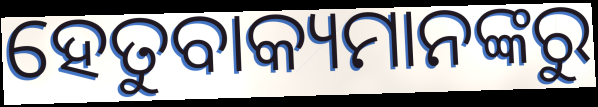
ହେତୁବାକ୍ୟମାନଙ୍କରୁ